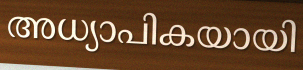
അധ്യാപികയായി